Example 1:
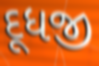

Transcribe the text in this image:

દૂધજી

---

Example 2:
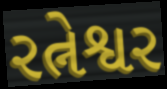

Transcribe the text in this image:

રત્નેશ્વર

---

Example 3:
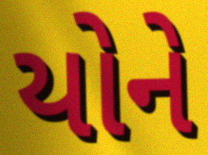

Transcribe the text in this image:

યોને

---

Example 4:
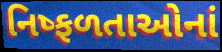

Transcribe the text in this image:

નિષ્ફળતાઓનાં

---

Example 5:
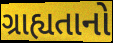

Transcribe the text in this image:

ગ્રાહ્યતાનો